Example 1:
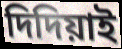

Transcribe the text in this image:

দিদিয়াই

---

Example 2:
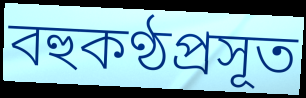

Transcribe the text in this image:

বহুকণ্ঠপ্রসূত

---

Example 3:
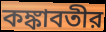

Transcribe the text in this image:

কঙ্কাবতীর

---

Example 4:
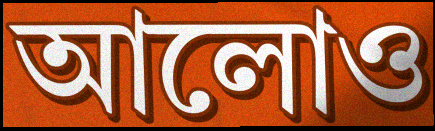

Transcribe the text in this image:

আলোও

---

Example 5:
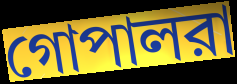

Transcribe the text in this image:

গোপালরা